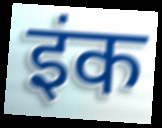
इंक